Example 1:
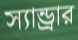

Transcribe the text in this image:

স্যান্ড্রার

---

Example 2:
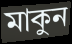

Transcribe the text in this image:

মাকুন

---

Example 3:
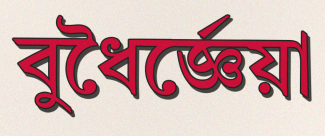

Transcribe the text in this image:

বুধৈর্জ্ঞেয়া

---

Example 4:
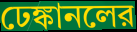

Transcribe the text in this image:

ঢেঙ্কানলের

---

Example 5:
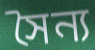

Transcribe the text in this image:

সৈন্য